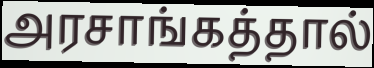
அரசாங்கத்தால்